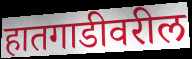
हातगाडीवरील